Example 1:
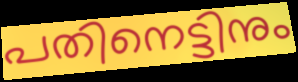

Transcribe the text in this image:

പതിനെട്ടിനും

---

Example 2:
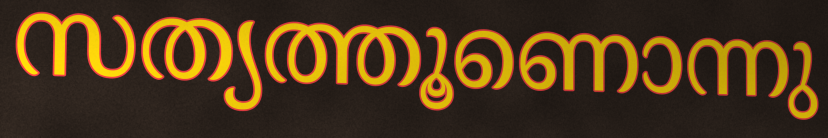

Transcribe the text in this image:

സത്യത്തൂണൊന്നു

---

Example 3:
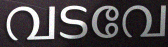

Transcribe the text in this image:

വടവേ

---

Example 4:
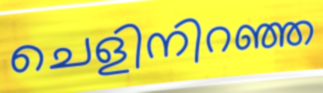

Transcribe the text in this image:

ചെളിനിറഞ്ഞ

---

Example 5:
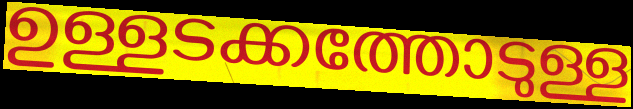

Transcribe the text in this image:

ഉള്ളടക്കത്തോടുള്ള